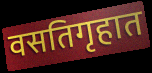
वसतिगृहात